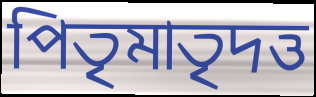
পিতৃমাতৃদত্ত